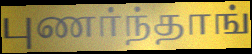
புணர்ந்தாங்